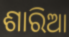
ଶାରିଆ